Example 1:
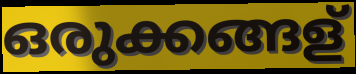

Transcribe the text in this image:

ഒരുക്കങ്ങള്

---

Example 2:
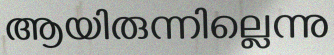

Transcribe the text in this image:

ആയിരുന്നില്ലെന്നു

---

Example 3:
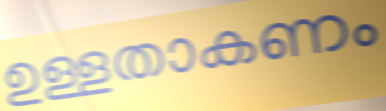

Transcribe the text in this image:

ഉള്ളതാകണം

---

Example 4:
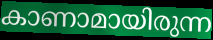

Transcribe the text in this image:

കാണാമായിരുന്ന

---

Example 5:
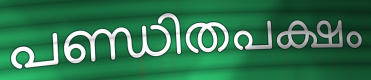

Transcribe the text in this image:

പണ്ഡിതപക്ഷം